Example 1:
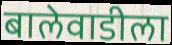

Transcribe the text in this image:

बालेवाडीला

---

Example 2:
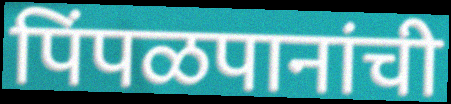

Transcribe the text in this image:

पिंपळपानांची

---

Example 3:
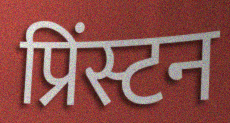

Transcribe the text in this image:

प्रिंस्टन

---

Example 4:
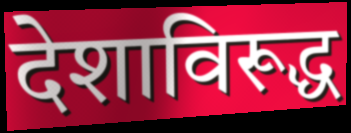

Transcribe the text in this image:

देशाविरूद्ध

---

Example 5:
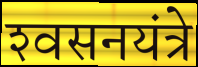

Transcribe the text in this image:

श्वसनयंत्रे